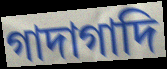
গাদাগাদি